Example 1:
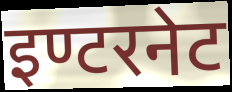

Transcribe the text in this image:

इण्टरनेट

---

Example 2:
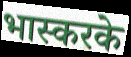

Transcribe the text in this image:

भास्करके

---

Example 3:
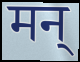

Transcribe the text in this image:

मन्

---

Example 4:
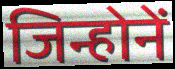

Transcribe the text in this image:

जिन्होनें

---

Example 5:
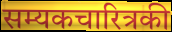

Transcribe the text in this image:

सम्यकचारित्रकी